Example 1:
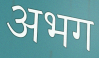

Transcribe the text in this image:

अभग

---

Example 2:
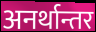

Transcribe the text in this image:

अनर्थान्तर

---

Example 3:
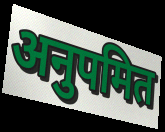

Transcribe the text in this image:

अनुपमित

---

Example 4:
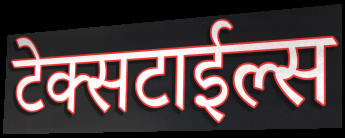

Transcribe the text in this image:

टेक्सटाईल्स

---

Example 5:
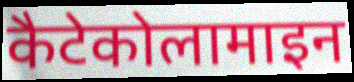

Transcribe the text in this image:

कैटेकोलामाइन